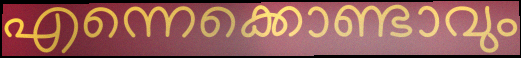
എന്നെക്കൊണ്ടാവും